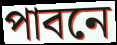
পাবনে